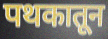
पथकातून